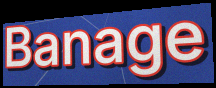
Banage